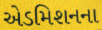
એડમિશનના